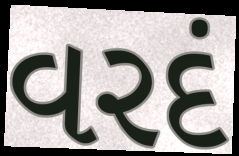
વરદં